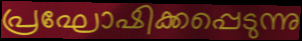
പ്രഘോഷിക്കപ്പെടുന്നു